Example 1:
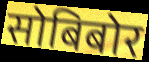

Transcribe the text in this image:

सोबिबोर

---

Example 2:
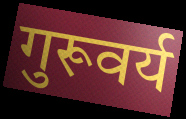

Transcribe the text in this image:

गुरूवर्य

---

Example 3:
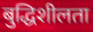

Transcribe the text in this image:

बुद्धिशीलता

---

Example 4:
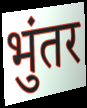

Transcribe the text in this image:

भुंतर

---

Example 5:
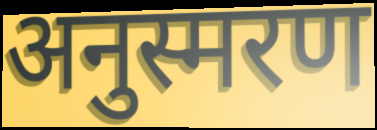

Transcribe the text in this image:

अनुस्मरण